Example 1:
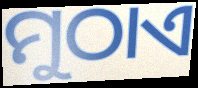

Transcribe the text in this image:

ମୁଠାଏ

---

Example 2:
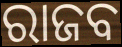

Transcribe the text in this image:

ରାଜବ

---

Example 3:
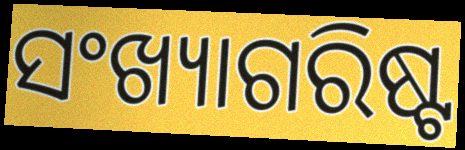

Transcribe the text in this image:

ସଂଖ୍ୟାଗରିଷ୍ଟ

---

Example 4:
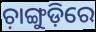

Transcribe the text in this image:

ଚ଼ାଙ୍ଗୁଡ଼ିରେ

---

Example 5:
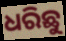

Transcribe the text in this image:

ଧରିଛୁ